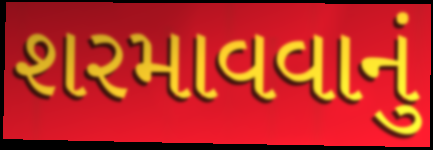
શરમાવવાનું